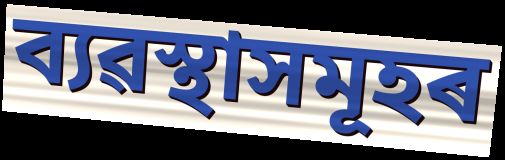
ব্যৱস্থাসমূহৰ